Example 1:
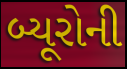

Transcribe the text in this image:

બ્યૂરોની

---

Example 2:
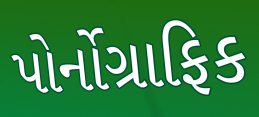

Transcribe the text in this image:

પોર્નોગ્રાફિક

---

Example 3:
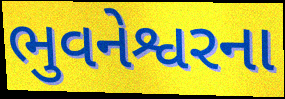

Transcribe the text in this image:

ભુવનેશ્વરના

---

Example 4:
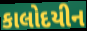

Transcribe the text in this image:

કાલોદયીન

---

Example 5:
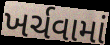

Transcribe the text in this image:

ખર્ચવામાં